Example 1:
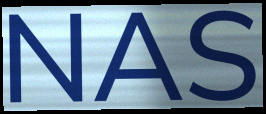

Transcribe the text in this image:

NAS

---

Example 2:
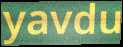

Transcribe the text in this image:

yavdu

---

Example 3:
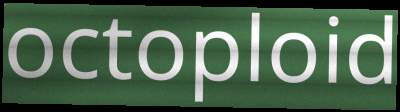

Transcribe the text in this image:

octoploid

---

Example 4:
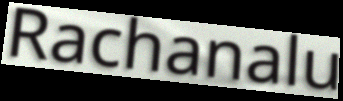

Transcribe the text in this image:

Rachanalu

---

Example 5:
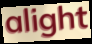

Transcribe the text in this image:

alight